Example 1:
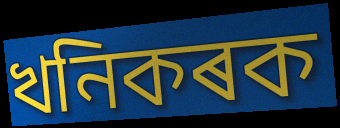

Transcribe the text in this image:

খনিকৰক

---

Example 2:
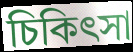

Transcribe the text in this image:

চিকিৎসা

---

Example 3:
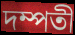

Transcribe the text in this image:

দম্পতী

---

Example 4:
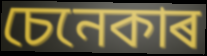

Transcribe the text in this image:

চেনেকাৰ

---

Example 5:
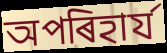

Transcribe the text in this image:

অপৰিহাৰ্য